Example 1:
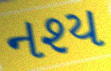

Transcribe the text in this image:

નશ્ય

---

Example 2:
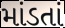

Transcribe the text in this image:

માંડતાં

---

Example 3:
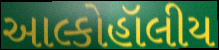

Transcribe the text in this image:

આલ્કોહૉલીય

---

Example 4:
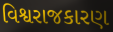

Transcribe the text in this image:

વિશ્વરાજકારણ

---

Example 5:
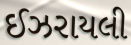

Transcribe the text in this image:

ઈઝરાયલી